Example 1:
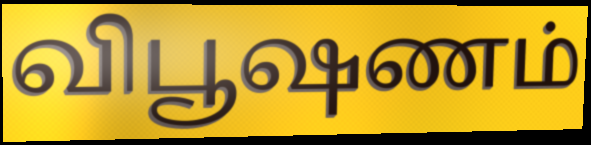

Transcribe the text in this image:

விபூஷணம்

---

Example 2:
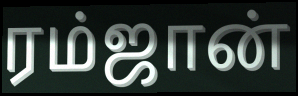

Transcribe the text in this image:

ரம்ஜான்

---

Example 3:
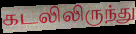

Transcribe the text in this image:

கடலிலிருந்து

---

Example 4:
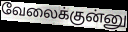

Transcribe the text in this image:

வேலைக்குன்னு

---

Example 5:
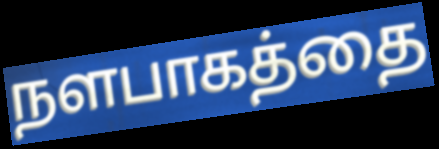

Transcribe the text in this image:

நளபாகத்தை